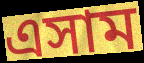
এসাম